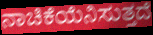
ನಾಚಿಕೆಯೆನಿಸುತ್ತದೆ